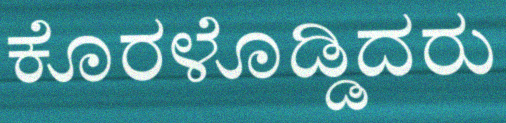
ಕೊರಳೊಡ್ಡಿದರು